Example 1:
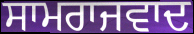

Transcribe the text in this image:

ਸਾਮਰਾਜਵਾਦ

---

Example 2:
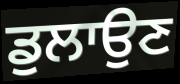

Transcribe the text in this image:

ਡੁਲਾਉਣ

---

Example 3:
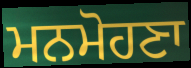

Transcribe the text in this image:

ਮਨਮੋਹਣਾ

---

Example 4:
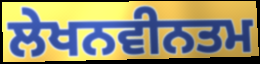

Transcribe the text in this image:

ਲੇਖਨਵੀਨਤਮ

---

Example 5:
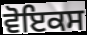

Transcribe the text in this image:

ਵੋਇਕਸ